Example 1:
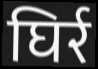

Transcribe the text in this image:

घिर्र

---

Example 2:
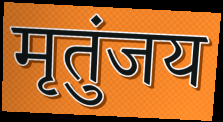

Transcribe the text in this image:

मृतुंजय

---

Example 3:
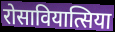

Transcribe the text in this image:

रोसावियात्सिया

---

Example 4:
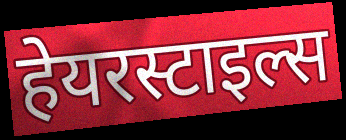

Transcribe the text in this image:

हेयरस्टाइल्स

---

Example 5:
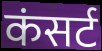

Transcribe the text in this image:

कंसर्ट